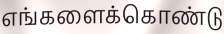
எங்களைக்கொண்டு